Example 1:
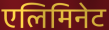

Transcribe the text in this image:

एलिमिनेट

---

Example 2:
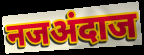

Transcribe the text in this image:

नजअंदाज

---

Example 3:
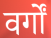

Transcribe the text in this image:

वर्गों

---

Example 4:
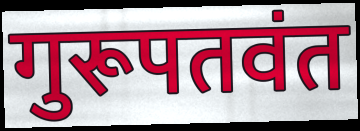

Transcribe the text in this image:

गुरूपतवंत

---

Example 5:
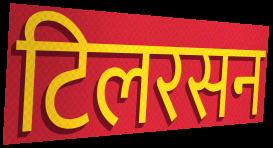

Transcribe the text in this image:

टिलरसन